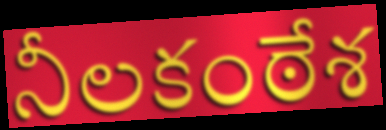
నీలకంఠేశ